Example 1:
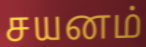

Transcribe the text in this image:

சயனம்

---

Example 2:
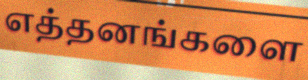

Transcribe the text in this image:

எத்தனங்களை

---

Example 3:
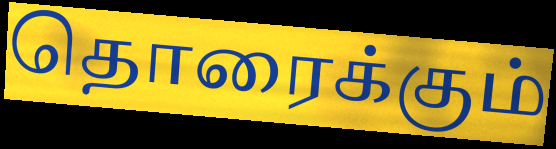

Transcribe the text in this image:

தொரைக்கும்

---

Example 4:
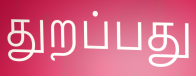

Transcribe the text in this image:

துறப்பது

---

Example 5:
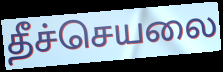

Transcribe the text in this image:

தீச்செயலை